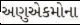
અણુએકમોના